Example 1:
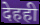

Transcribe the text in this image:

देहही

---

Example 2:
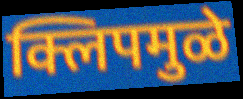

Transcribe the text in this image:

क्लिपमुळे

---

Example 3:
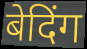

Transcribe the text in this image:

बेदिंग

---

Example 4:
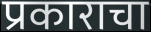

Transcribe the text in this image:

प्रकाराचा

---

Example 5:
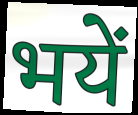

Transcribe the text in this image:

भयें